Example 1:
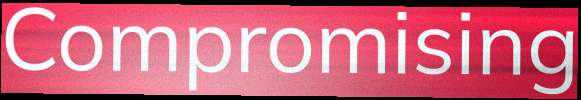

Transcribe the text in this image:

Compromising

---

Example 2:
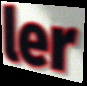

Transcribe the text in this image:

ler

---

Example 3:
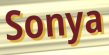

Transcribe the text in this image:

Sonya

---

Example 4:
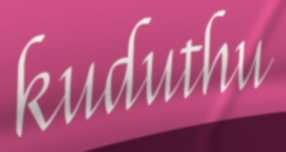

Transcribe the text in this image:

kuduthu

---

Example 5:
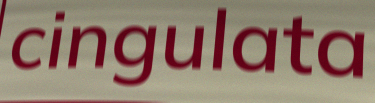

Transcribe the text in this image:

cingulata